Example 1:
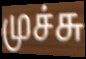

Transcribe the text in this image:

முச்சு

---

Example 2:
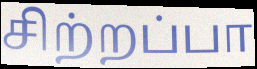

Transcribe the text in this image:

சிற்றப்பா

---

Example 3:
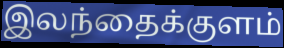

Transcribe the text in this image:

இலந்தைக்குளம்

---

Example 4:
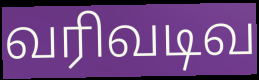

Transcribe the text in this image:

வரிவடிவ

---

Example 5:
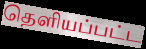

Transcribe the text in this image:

தெளியப்பட்ட